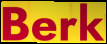
Berk